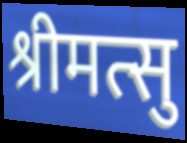
श्रीमत्सु